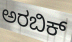
ಅರಬಿಕ್